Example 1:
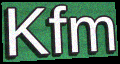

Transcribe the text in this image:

Kfm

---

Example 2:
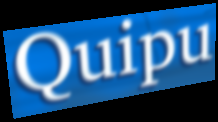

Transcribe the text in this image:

Quipu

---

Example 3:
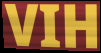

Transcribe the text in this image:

VIH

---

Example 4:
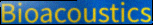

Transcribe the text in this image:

Bioacoustics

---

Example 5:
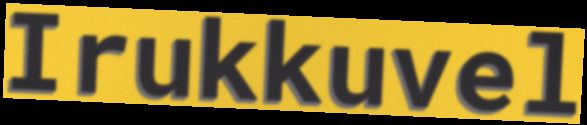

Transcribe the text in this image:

Irukkuvel